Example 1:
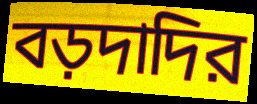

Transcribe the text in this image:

বড়দাদির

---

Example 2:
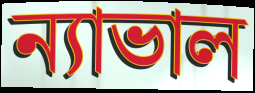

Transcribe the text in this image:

ন্যাভাল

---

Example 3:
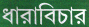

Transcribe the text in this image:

ধারাবিচার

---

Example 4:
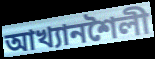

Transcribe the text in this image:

আখ্যানশৈলী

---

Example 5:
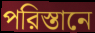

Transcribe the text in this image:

পরিস্তানে